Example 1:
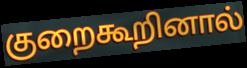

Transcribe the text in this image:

குறைகூறினால்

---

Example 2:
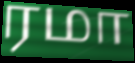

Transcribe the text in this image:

ரமா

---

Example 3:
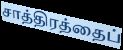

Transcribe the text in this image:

சாத்திரத்தைப்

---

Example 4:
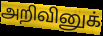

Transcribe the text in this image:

அறிவினுக்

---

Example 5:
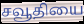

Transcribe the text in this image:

சவூதியை